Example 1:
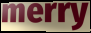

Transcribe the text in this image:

merry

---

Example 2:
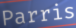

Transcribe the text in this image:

Parris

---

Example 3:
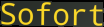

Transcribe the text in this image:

Sofort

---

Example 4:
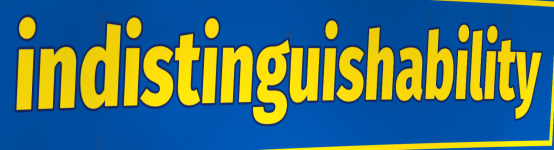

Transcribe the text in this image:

indistinguishability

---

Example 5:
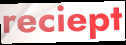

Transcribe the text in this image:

reciept